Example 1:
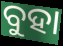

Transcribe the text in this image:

ବୁହା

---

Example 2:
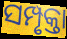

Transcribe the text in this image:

ସମ୍ପୃକ୍ତା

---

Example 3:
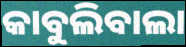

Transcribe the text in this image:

କାବୁଲିବାଲା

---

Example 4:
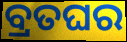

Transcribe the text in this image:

ବ୍ରତଘର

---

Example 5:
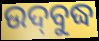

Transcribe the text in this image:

ଉଦ୍‍ବୁଦ୍ଧ